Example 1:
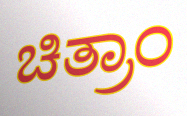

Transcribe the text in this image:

ಚಿತ್ರಾಂ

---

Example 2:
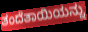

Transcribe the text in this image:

ತಂದೆತಾಯಿಯನ್ನು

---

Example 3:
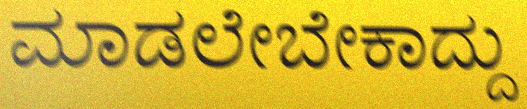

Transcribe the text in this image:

ಮಾಡಲೇಬೇಕಾದ್ದು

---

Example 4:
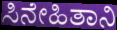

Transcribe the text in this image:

ಸಿನೇಹಿತಾನಿ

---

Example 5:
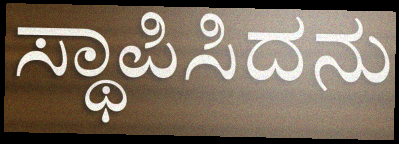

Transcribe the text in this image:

ಸ್ಥಾಪಿಸಿದನು